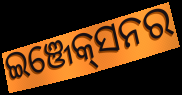
ଇଞ୍ଜେକ୍‌ସନର